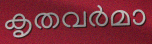
കൃതവർമാ